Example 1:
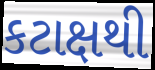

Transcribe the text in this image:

કટાક્ષથી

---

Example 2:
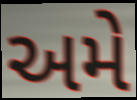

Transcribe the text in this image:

અમે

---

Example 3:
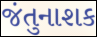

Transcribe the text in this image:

જંતુનાશક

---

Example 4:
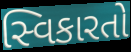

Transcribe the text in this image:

સ્વિકારતો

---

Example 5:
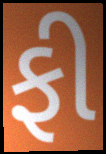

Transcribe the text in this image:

ફી